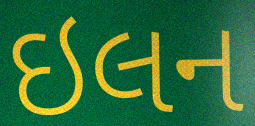
ઇલન